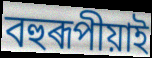
বহুৰূপীয়াই